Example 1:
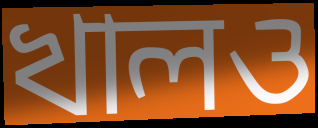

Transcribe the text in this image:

খালও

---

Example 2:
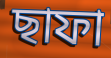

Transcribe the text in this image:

ছাফা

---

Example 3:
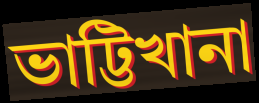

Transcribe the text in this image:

ভাট্টিখানা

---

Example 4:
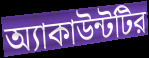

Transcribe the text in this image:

অ্যাকাউন্টটির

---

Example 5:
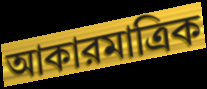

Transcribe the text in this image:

আকারমাত্রিক